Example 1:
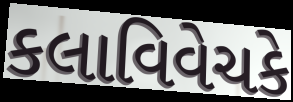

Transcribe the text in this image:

કલાવિવેચકે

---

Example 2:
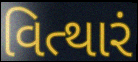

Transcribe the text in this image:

વિત્થારં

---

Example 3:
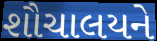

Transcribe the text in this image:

શૌચાલયને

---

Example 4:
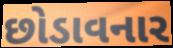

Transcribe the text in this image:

છોડાવનાર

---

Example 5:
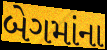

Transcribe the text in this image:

બેગમાંના